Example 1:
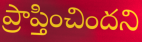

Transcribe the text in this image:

ప్రాప్తించిందని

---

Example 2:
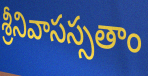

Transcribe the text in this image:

శ్రీనివాసస్సతాం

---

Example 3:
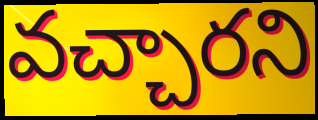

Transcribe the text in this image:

వచ్చారని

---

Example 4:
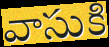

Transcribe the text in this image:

వాసుకి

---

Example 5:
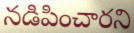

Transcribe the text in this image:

నడిపించారని